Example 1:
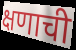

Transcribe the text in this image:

क्षणाची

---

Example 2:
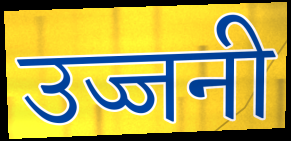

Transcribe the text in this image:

उज्जनी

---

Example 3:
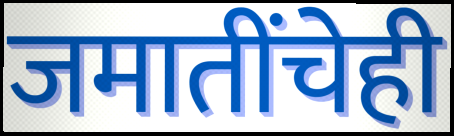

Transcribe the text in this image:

जमातींचेही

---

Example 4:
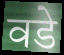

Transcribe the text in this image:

वडे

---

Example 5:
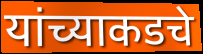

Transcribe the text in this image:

यांच्याकडचे